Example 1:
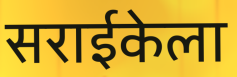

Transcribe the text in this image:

सराईकेला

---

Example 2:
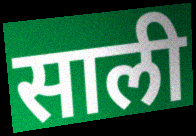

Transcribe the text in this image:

साली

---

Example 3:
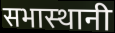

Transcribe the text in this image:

सभास्थानी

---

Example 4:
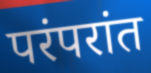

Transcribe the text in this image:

परंपरांत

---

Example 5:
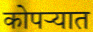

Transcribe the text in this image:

कोपर्‍यात